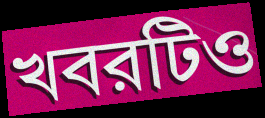
খবরটিও